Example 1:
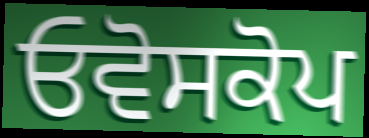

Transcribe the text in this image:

ਓਵੋਸਕੋਪ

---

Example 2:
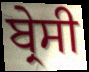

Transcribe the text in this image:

ਬ੍ਰੇਸੀ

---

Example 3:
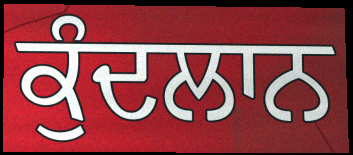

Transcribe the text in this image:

ਕੁੰਦਲਾਨ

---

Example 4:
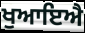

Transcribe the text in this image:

ਖੁਆਇਐ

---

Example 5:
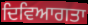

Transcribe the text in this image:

ਦਿਵਿਆਗਤਾ